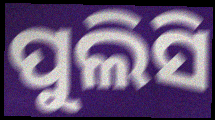
ପୁଲିସି